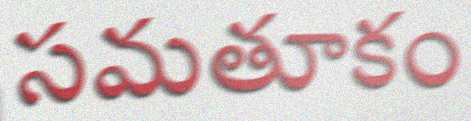
సమతూకం